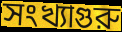
সংখ্যাগুৰু